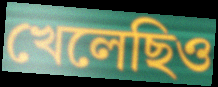
খেলেছিও